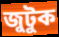
জুটুক